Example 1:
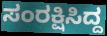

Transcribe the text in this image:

ಸಂರಕ್ಷಿಸಿದ್ದ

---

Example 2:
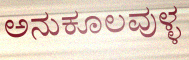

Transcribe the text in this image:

ಅನುಕೂಲವುಳ್ಳ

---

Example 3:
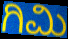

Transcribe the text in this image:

ಗಿಮಿ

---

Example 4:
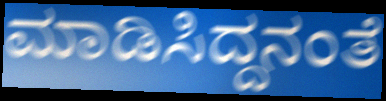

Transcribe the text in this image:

ಮಾಡಿಸಿದ್ದನಂತೆ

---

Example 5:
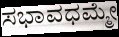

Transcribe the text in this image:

ಸಭಾವಧಮ್ಮೇ